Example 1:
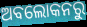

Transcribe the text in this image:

ଅବଲୋକନରୁ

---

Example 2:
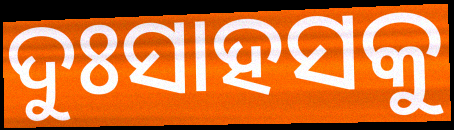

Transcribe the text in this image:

ଦୁଃସାହସକୁ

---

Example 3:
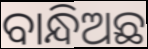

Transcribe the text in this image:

ବାନ୍ଧିଅଛ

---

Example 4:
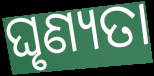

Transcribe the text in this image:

ଘୃଣ୍ୟତା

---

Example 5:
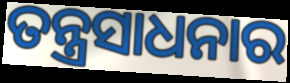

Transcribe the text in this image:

ତନ୍ତ୍ରସାଧନାର